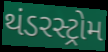
થંડરસ્ટ્રોમ